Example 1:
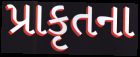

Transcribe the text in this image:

પ્રાકૃતના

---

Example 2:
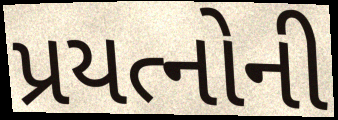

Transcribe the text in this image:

પ્રયત્નોની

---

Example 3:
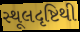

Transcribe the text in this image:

સ્થૂલદૃષ્ટિથી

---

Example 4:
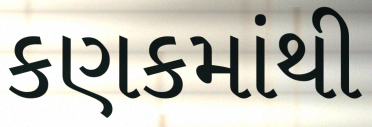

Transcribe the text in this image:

કણકમાંથી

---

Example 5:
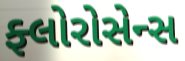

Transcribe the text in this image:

ફ્લોરોસેન્સ